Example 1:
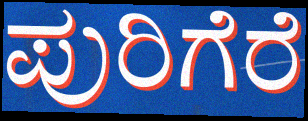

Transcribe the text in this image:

ಪುರಿಗೆರೆ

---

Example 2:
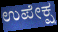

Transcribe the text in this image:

ಉಪೇಕ್ಷ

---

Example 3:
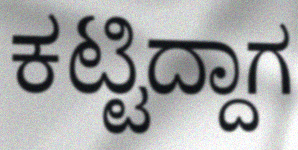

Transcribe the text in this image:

ಕಟ್ಟಿದ್ದಾಗ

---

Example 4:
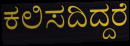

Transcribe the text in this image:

ಕಲಿಸದಿದ್ದರೆ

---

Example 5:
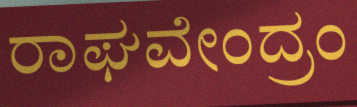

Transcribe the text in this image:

ರಾಘವೇಂದ್ರಂ